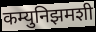
कम्युनिझमशी